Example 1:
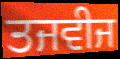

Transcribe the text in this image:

ਤਜਵੀਜ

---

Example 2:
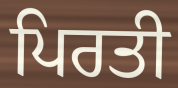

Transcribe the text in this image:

ਪਿਰਤੀ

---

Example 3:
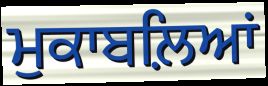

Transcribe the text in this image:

ਮੁਕਾਬਲ਼ਿਆਂ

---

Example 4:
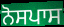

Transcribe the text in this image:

ਨੋਸਪਾਸ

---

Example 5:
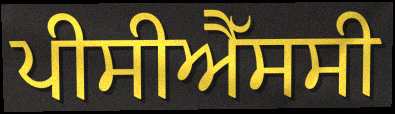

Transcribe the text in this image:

ਪੀਸੀਐੱਸਸੀ